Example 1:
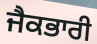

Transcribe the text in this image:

ਜੈਕਭਾਰੀ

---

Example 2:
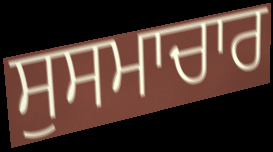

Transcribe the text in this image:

ਸੁਸਮਾਚਾਰ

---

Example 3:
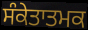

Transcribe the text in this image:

ਸੰਕੇਤਾਤਮਕ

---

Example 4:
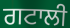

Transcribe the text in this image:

ਗਟਾਲੀ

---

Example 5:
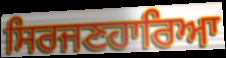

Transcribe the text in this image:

ਸਿਰਜਣਹਾਰਿਆ